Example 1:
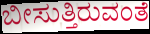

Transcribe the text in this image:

ಬೀಸುತ್ತಿರುವಂತೆ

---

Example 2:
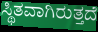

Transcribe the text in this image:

ಸ್ಥಿತವಾಗಿರುತ್ತದೆ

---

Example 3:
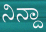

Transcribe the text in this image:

ನಿನ್ದಾ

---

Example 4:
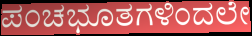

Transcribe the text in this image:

ಪಂಚಭೂತಗಳಿಂದಲೇ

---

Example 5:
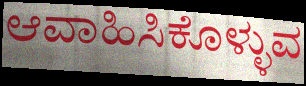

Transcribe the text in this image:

ಆವಾಹಿಸಿಕೊಳ್ಳುವ